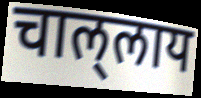
चाल्लाय